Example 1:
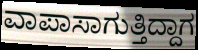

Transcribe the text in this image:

ವಾಪಾಸಾಗುತ್ತಿದ್ದಾಗ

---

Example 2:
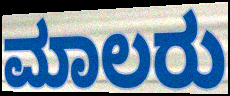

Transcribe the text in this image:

ಮಾಲರು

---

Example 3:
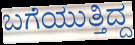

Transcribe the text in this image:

ಬಗೆಯುತ್ತಿದ್ದ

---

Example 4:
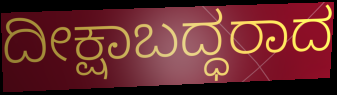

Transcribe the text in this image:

ದೀಕ್ಷಾಬದ್ಧರಾದ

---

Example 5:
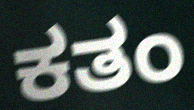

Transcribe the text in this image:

ಕತಂ